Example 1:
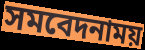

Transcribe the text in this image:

সমবেদনাময়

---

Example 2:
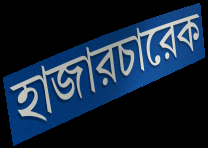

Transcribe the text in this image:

হাজারচারেক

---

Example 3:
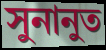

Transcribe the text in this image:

সুনানুত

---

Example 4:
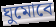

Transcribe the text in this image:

ঘুমোবে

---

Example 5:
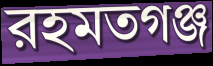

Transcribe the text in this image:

রহমতগঞ্জ